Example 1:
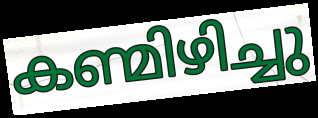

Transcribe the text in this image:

കണ്മിഴിച്ചു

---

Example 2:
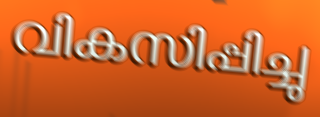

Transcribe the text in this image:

വികസിപ്പിച്ചു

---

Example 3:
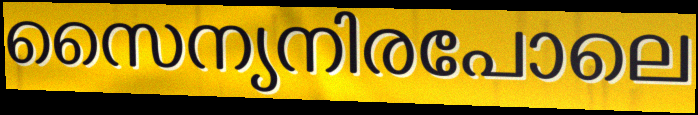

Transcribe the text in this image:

സൈന്യനിരപോലെ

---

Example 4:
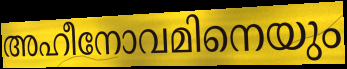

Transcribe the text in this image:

അഹീനോവമിനെയും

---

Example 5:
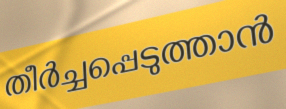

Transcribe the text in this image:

തീർച്ചപ്പെടുത്താൻ